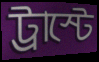
ট্রাস্টে